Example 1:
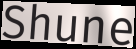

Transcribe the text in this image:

Shune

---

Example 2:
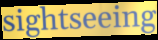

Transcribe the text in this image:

sightseeing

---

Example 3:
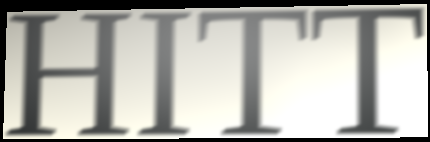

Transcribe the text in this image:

HITT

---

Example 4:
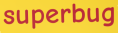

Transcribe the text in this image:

superbug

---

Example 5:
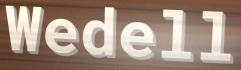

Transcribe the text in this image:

Wedell